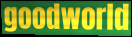
goodworld